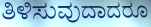
ತಿಳಿಸುವುದಾದರೂ